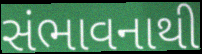
સંભાવનાથી